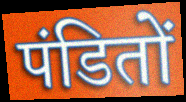
पंडितों